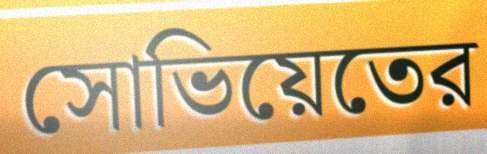
সোভিয়েতের